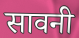
सावनी